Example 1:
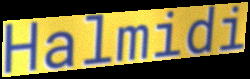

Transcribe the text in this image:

Halmidi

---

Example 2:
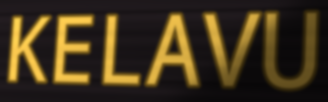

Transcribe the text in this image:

KELAVU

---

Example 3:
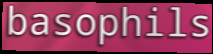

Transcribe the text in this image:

basophils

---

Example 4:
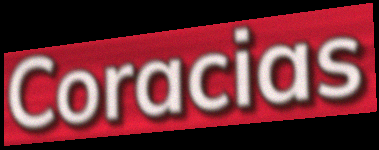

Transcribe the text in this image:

Coracias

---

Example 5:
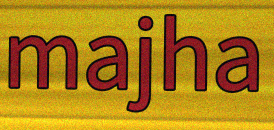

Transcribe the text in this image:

majha